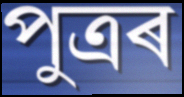
পুত্ৰৰ